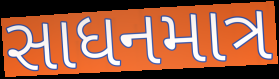
સાધનમાત્ર